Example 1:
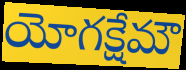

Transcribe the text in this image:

యోగక్షేమౌ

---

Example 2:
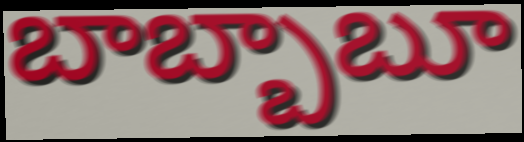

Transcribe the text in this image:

బాబ్బాబూ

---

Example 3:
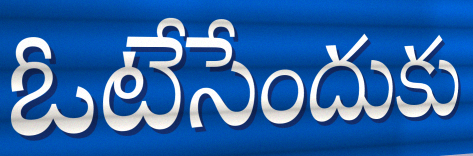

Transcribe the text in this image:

ఓటేసేందుకు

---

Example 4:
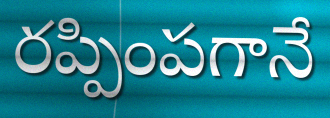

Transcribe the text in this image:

రప్పింపగానే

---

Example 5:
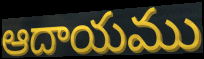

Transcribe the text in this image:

ఆదాయము